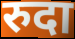
रुदा